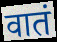
वातं